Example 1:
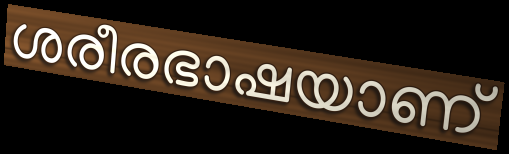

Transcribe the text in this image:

ശരീരഭാഷയാണ്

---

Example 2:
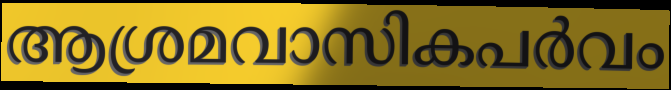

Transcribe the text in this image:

ആശ്രമവാസികപർവം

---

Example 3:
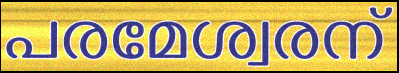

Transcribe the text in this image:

പരമേശ്വരന്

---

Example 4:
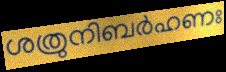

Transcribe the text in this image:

ശത്രുനിബർഹണഃ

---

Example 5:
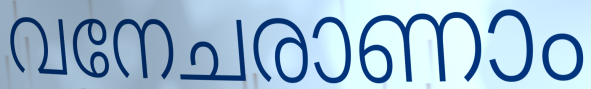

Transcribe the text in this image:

വനേചരാണാം